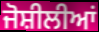
ਜੋਸ਼ੀਲੀਆਂ